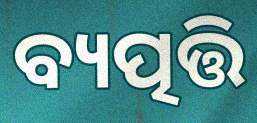
ବ୍ୟତ୍ପତ୍ତି